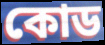
কোড